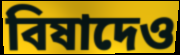
বিষাদেও